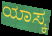
ಯಾಸ್ಕ